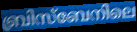
ബ്രിസ്ബേനിലെ